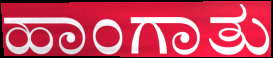
ಹಾಂಗಾತು